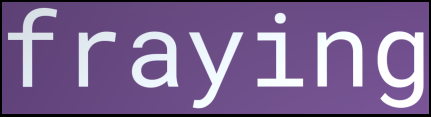
fraying